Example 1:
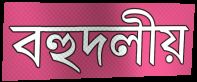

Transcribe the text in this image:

বহুদলীয়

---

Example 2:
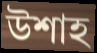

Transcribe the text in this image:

উশাহ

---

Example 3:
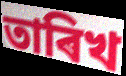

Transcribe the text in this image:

তাৰিখ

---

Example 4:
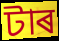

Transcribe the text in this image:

টাৰ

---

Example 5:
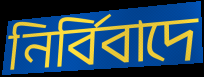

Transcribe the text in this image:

নিৰ্বিবাদে